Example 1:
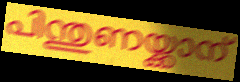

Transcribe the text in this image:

പിന്തുണയ്ക്കാന്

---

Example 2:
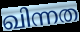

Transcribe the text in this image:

ഖിന്നത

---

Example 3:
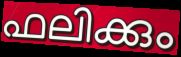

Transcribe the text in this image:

ഫലിക്കും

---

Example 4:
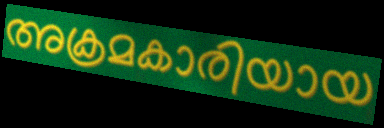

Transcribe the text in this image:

അക്രമകാരിയായ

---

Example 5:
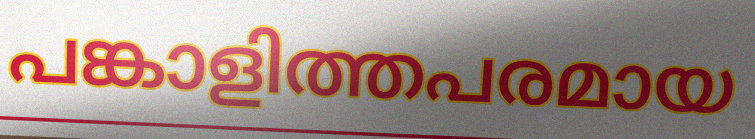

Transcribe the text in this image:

പങ്കാളിത്തപരമായ